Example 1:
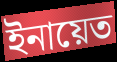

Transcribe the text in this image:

ইনায়েত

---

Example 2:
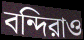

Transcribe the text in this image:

বন্দিরাও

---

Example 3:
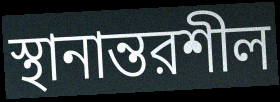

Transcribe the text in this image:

স্থানান্তরশীল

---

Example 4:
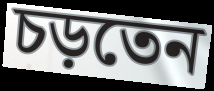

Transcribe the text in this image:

চড়তেন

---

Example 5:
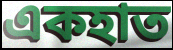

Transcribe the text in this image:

একহাত